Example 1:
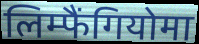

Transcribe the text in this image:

लिम्फैंगियोमा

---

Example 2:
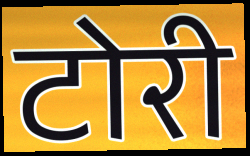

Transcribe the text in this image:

टोरी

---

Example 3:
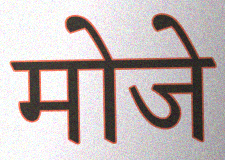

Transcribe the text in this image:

मोजे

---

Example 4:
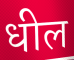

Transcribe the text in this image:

धील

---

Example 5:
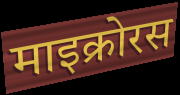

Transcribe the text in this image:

माइक्रोरस